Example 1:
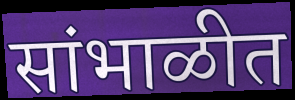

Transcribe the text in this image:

सांभाळीत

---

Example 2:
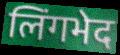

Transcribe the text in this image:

लिंगभेद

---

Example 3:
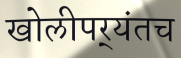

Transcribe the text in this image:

खोलीपर्यंतच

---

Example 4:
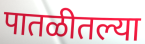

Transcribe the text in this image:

पातळीतल्या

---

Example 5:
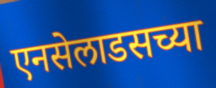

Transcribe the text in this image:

एनसेलाडसच्या